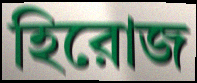
হিরোজ